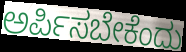
ಅರ್ಪಿಸಬೇಕೆಂದು